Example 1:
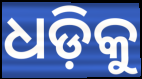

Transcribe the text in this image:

ଧଡ଼ିକୁ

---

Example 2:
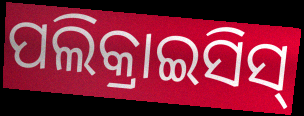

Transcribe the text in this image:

ପଲିକ୍ରାଇସିସ୍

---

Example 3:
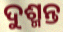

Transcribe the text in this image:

ଦୁଶ୍ମନ୍ତ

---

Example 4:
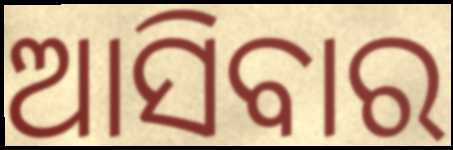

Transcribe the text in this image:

ଆସିବାର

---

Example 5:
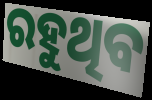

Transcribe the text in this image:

ରହୁଥିବ